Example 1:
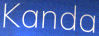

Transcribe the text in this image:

Kanda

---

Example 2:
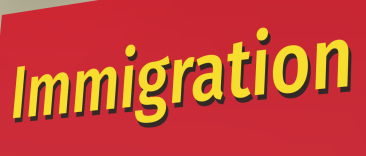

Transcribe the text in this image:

Immigration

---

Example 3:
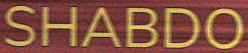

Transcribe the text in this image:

SHABDO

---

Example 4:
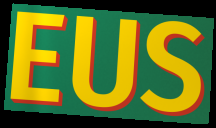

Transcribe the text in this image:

EUS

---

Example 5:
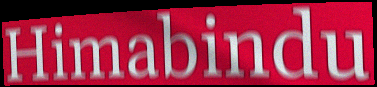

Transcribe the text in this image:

Himabindu